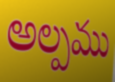
అల్పము